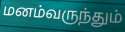
மனம்வருந்தும்